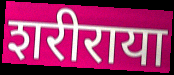
शरीराया